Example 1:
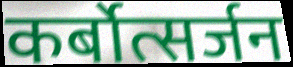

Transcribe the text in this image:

कर्बोत्सर्जन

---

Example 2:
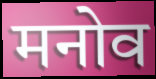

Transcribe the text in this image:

मनोव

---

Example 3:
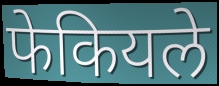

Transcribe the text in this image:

फेकियले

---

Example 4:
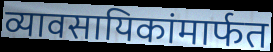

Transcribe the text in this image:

व्यावसायिकांमार्फत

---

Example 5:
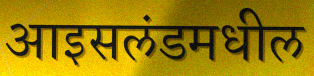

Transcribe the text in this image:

आइसलंडमधील